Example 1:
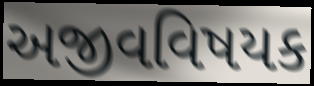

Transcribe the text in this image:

અજીવવિષયક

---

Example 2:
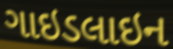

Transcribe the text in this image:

ગાઇડલાઇન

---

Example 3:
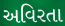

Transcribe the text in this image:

અવિરતા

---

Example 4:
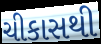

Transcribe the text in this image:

ચીકાસથી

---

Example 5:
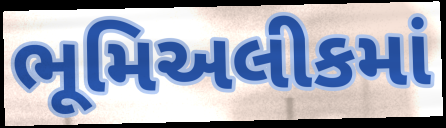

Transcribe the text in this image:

ભૂમિઅલીકમાં